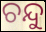
ଚନ୍ଦୁ